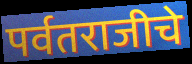
पर्वतराजीचे